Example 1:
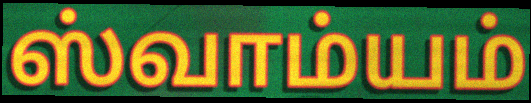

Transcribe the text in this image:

ஸ்வாம்யம்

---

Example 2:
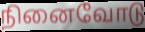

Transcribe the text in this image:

நினைவோடு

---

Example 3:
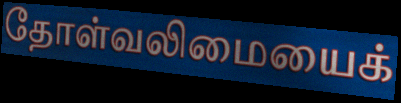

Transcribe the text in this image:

தோள்வலிமையைக்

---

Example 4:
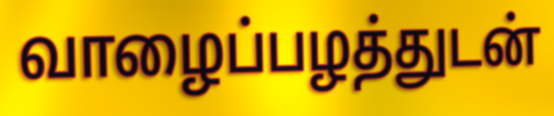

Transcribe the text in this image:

வாழைப்பழத்துடன்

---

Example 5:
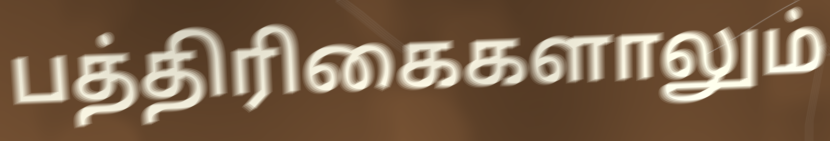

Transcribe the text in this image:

பத்திரிகைகளாலும்